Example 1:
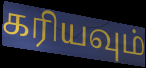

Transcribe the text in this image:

கரியவும்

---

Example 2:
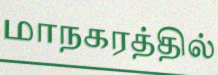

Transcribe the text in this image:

மாநகரத்தில்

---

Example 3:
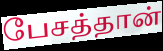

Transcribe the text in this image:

பேசத்தான்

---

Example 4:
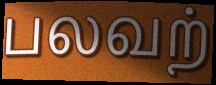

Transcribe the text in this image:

பலவற்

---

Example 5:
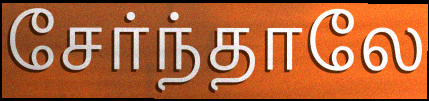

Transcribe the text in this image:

சேர்ந்தாலே